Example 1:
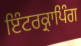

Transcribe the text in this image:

ਇੰਟਰਕ੍ਰਾਪਿੰਗ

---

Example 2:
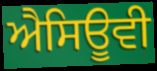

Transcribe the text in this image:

ਐਸਿਊਵੀ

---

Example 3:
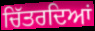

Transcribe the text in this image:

ਚਿੱਤਰਦਿਆਂ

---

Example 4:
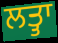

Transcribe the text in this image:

ਲਤ੍ਤਾ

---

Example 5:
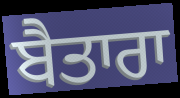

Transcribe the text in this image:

ਬੈਤਾਰਾ